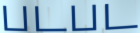
படபட